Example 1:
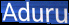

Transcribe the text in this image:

Aduru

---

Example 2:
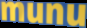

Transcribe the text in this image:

munu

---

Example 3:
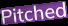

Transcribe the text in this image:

Pitched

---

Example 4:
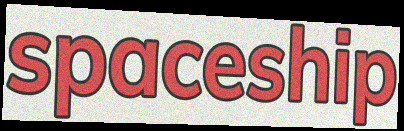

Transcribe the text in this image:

spaceship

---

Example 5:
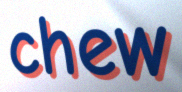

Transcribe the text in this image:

chew